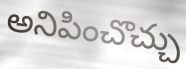
అనిపించొచ్చు